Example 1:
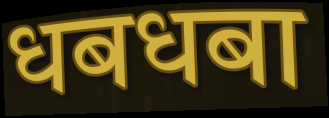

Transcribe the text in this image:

धबधबा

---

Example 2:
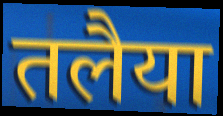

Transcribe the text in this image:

तलैया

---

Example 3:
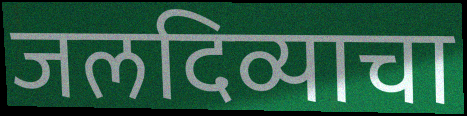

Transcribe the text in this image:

जलदिव्याचा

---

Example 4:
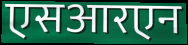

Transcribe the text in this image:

एसआरएन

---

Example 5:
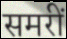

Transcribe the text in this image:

समरीं